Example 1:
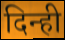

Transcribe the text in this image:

दिन्ही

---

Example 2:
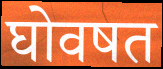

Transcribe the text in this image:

घोवषत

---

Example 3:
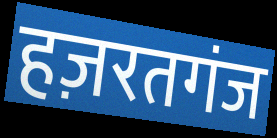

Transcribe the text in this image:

हज़रतगंज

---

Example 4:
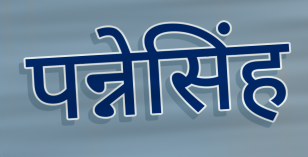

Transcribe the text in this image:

पन्नेसिंह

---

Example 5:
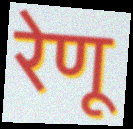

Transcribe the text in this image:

रेणू